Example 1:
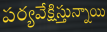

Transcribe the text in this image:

పర్యవేక్షిస్తున్నాయి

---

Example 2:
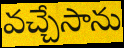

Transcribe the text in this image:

వచ్చేసాను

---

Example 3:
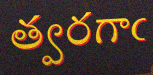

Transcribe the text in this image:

త్వరగాఁ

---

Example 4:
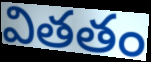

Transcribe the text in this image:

వితతం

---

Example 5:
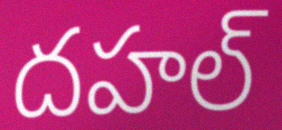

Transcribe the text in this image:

దహల్